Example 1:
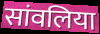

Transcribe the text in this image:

सांवलिया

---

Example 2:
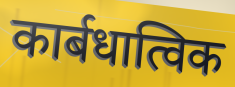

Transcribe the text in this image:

कार्बधात्विक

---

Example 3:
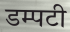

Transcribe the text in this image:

डम्पटी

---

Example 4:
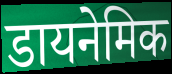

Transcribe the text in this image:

डायनेमिक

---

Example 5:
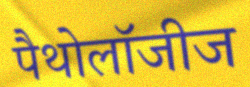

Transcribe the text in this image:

पैथोलॉजीज